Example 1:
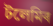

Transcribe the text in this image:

টলেমিৰ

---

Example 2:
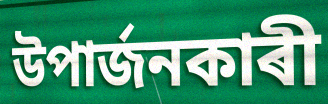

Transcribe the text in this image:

উপাৰ্জনকাৰী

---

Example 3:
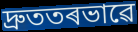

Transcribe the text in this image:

দ্ৰুততৰভাৱে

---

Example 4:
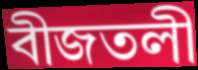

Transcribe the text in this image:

বীজতলী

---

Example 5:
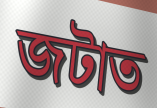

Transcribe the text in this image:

জটাত